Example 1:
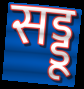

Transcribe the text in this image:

सड्डू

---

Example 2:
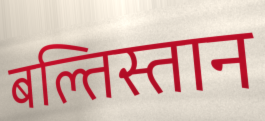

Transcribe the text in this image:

बल्तिस्तान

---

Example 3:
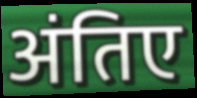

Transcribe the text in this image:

अंतिए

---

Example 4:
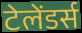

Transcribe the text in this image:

टेलेंडर्स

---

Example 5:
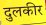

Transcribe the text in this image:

दुलकीर